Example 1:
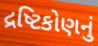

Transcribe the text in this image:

દ્રષ્ટિકોણનું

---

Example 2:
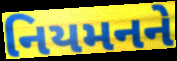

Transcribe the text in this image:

નિયમનને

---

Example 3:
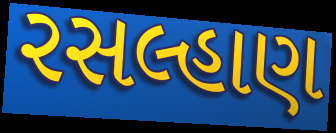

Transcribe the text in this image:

રસલ્હાણ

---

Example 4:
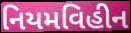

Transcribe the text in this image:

નિયમવિહીન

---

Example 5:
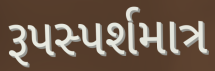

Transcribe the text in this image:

રૂપસ્પર્શમાત્ર